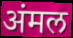
अंमल